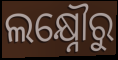
ଲକ୍ଷ୍ନୌରୁ